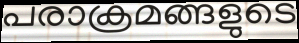
പരാക്രമങ്ങളുടെ